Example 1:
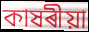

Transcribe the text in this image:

কাষৰীয়া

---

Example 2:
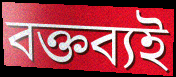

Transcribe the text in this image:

বক্তব্যই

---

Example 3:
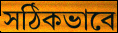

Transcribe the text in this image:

সঠিকভাবে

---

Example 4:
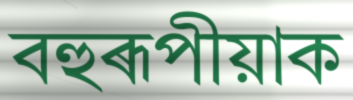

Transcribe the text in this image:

বহুৰূপীয়াক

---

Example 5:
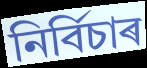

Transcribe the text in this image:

নিৰ্বিচাৰ